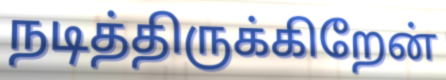
நடித்திருக்கிறேன்